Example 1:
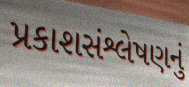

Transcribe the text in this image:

પ્રકાશસંશ્લેષણનું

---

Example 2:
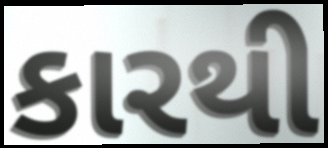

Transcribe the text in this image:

કારથી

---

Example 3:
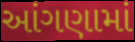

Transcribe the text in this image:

આંગણામાં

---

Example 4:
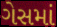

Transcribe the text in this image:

ગેસમાં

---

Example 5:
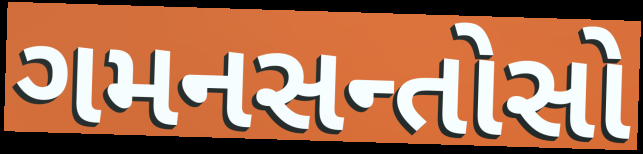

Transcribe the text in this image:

ગમનસન્તોસો